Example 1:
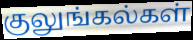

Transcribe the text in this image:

குலுங்கல்கள்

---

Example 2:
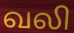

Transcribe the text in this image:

வலி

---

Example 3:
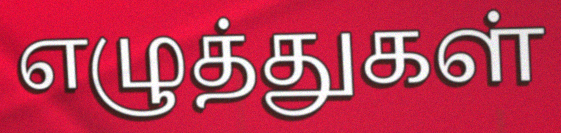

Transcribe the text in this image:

எழுத்துகள்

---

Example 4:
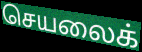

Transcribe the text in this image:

செயலைக்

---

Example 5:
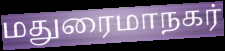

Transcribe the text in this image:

மதுரைமாநகர்